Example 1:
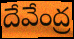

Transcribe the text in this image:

దేవేంద్ర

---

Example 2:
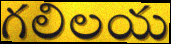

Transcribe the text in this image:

గలిలయ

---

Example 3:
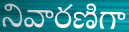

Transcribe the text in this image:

నివారణిగా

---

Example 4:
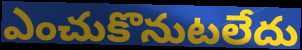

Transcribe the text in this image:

ఎంచుకొనుటలేదు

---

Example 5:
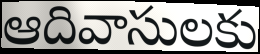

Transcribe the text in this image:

ఆదివాసులకు